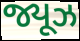
જ્યૂઝ